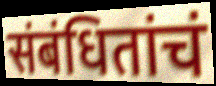
संबंधितांचं